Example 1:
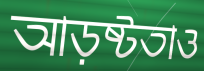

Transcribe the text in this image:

আড়ষ্টতাও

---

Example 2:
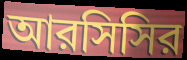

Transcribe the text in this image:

আরসিসির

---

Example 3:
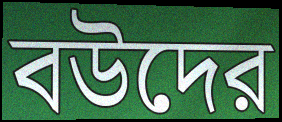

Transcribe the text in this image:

বউদের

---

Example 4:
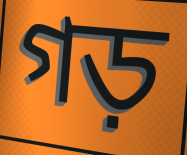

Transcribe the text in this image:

গড়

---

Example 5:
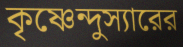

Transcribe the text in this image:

কৃষ্ণেন্দুস্যারের